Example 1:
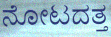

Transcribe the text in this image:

ನೋಟದತ್ತ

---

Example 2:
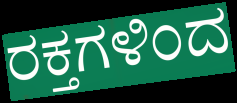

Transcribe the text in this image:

ರಕ್ತಗಳಿಂದ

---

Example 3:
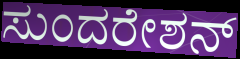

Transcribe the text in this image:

ಸುಂದರೇಶನ್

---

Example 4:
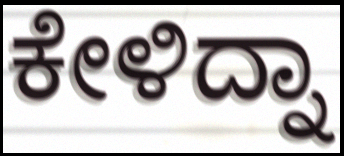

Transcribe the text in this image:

ಕೇಳಿದ್ನಾ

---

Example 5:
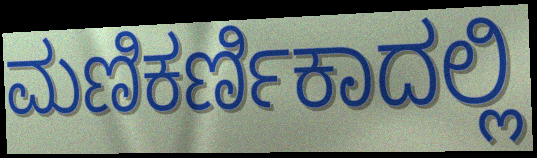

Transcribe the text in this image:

ಮಣಿಕರ್ಣಿಕಾದಲ್ಲಿ